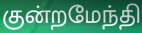
குன்றமேந்தி